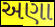
અણા